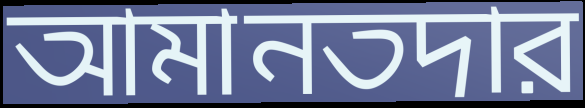
আমানতদার